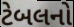
ટેબલનો